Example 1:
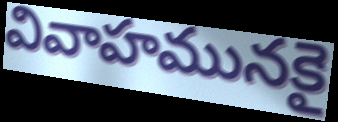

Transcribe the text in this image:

వివాహమునకై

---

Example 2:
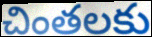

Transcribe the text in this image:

చింతలకు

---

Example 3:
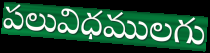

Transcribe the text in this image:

పలువిధములగు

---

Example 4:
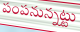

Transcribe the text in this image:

పంపనున్నట్టు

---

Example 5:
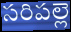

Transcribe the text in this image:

సరిపల్లె